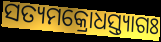
ସତ୍ୟମକ୍ରୋଧସ୍ତ୍ୟାଗଃ